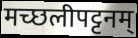
मच्छलीपट्टनम्